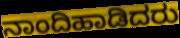
ನಾಂದಿಹಾಡಿದರು